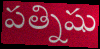
పత్నిషు